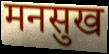
मनसुख